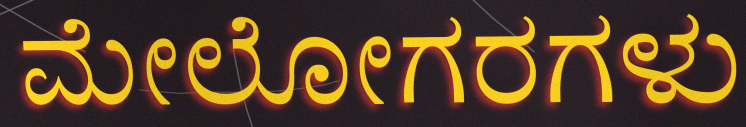
ಮೇಲೋಗರಗಳು